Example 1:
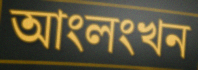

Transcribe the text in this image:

আংলংখন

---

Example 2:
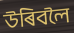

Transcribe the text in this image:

উৰিবলৈ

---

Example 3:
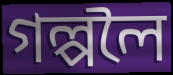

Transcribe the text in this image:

গল্পলৈ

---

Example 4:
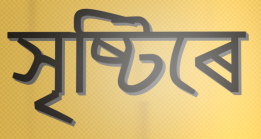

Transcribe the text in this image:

সৃষ্টিৰে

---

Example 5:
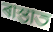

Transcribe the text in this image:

ৰাস্তাত